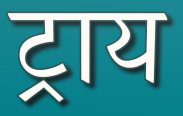
ट्राय